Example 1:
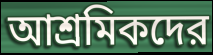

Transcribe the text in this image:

আশ্রমিকদের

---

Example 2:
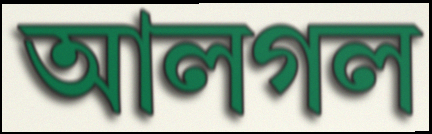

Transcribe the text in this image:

আলগল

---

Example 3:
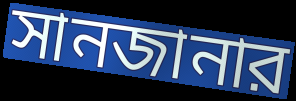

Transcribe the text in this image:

সানজানার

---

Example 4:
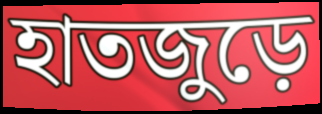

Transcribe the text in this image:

হাতজুড়ে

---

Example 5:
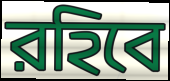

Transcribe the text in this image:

রহিবে